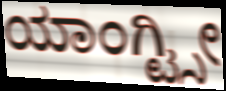
ಯಾಂಗ್ಟ್ಸೀ